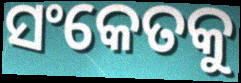
ସଂକେତକୁ